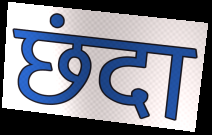
छंदा